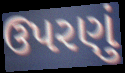
ઉપરણું